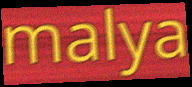
malya